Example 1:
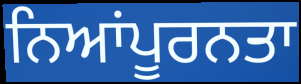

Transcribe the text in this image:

ਨਿਆਂਪੂਰਨਤਾ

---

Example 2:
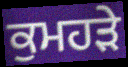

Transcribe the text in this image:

ਕੁਮਹੜੇ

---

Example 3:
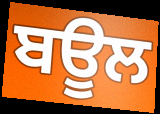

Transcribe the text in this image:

ਬਊਲ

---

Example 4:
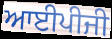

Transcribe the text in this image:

ਆਈਪੀਜੀ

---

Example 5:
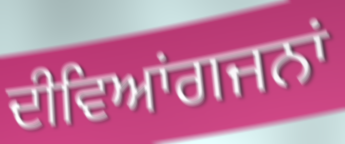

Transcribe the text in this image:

ਦੀਵਿਆਂਗਜਨਾਂ